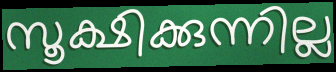
സൂക്ഷിക്കുന്നില്ല